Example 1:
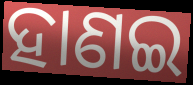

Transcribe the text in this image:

ହାଣଇ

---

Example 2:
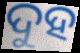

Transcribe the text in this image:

ଦୁହ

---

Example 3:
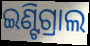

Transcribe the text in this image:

ଇଣ୍ଟିଗ୍ରାଲ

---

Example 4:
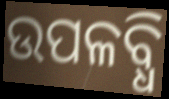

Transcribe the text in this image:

ଉପଳବ୍ଧି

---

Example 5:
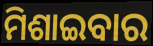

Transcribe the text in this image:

ମିଶାଇବାର